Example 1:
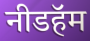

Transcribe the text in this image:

नीडहॅम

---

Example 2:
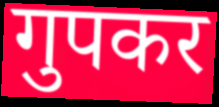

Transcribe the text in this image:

गुपकर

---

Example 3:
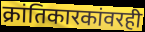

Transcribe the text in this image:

क्रांतिकारकांवरही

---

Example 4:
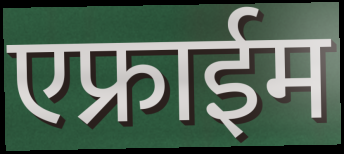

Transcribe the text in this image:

एफ्राईम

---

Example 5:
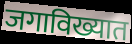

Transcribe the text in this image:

जगाविख्यात